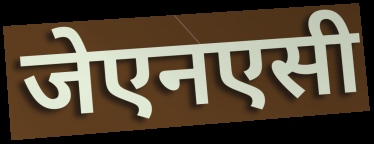
जेएनएसी